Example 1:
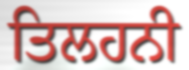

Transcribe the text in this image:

ਤਿਲਹਨੀ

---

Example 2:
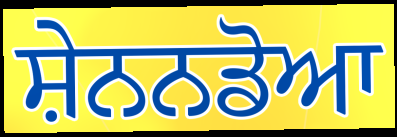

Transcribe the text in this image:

ਸ਼ੇਨਨਡੋਆ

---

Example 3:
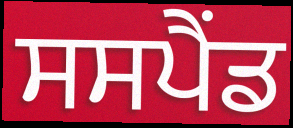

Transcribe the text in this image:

ਸਸਪੈੰਡ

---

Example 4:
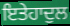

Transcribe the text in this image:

ਇਤੇਹਾਦੁਲ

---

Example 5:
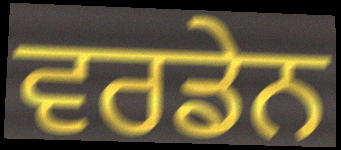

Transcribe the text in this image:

ਵਰਡੇਨ